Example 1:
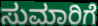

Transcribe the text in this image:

ಸುಮಾರಿಗೆ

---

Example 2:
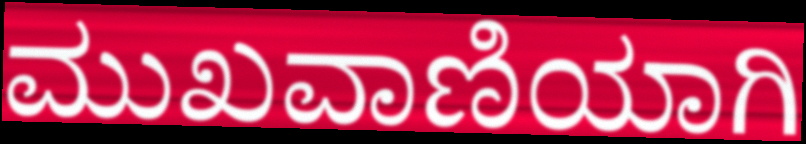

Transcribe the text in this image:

ಮುಖವಾಣಿಯಾಗಿ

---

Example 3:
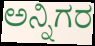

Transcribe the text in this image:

ಅನ್ನಿಗರ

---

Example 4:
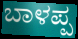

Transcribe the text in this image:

ಬಾಳಪ್ಪ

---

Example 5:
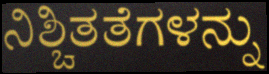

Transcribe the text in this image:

ನಿಶ್ಚಿತತೆಗಳನ್ನು